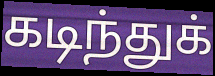
கடிந்துக்